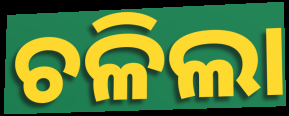
ଚଳିଲା